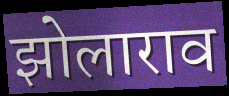
झोलाराव